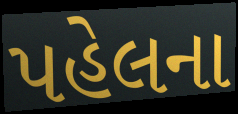
પહેલના